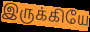
இருக்கியே